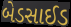
બેડસાઈડ